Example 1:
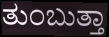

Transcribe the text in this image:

ತುಂಬುತ್ತಾ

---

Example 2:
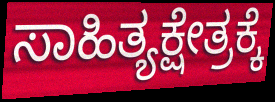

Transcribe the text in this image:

ಸಾಹಿತ್ಯಕ್ಷೇತ್ರಕ್ಕೆ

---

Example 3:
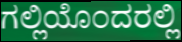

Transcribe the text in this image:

ಗಲ್ಲಿಯೊಂದರಲ್ಲಿ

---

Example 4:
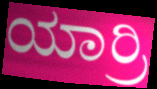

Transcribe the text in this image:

ಯಾರ್ರಿ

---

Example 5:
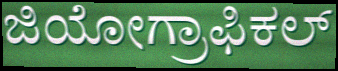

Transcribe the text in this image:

ಜಿಯೋಗ್ರಾಫಿಕಲ್